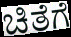
ಚಿತೆಗೆ